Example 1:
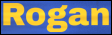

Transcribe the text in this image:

Rogan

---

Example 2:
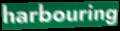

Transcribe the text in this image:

harbouring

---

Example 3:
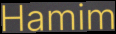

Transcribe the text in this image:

Hamim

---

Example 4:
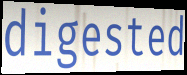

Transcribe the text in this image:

digested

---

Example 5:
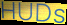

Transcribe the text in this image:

HUDs